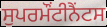
ਸੁਪਰਮੌਂਟੀਨੈਂਟਸ